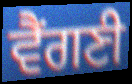
ਵੈਂਗਣੀ